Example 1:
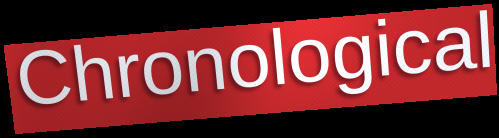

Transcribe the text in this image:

Chronological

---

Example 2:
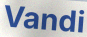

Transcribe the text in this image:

Vandi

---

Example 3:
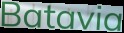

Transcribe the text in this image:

Batavia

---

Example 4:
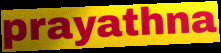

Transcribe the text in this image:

prayathna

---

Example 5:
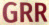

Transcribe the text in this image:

GRR